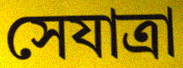
সেযাত্রা